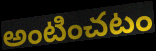
అంటించటం